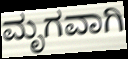
ಮೃಗವಾಗಿ